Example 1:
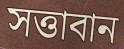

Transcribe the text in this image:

সত্তাবান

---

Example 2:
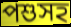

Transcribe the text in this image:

পশুসহ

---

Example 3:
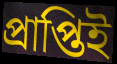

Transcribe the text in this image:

প্রাপ্তিই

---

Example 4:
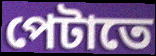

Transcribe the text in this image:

পেটাতে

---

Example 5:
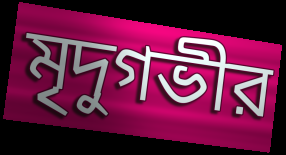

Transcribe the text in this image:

মৃদুগভীর